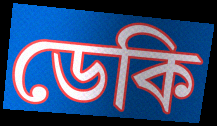
ডেকি